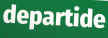
departide